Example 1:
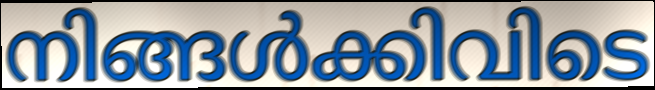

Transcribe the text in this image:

നിങ്ങൾക്കിവിടെ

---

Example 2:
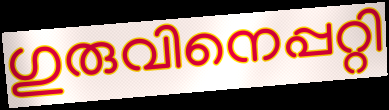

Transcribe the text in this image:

ഗുരുവിനെപ്പറ്റി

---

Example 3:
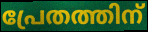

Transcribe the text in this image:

പ്രേതത്തിന്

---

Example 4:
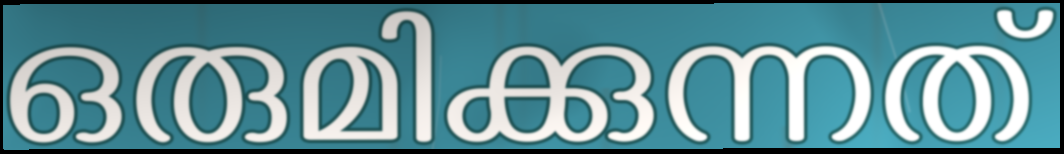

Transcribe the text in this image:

ഒരുമിക്കുന്നത്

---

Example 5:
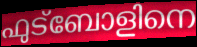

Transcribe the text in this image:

ഫുട്ബോളിനെ